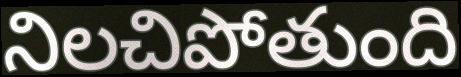
నిలచిపోతుంది